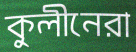
কুলীনেরা